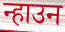
न्हाउन